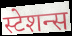
स्टेशन्स